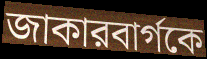
জাকারবার্গকে